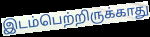
இடம்பெற்றிருக்காது